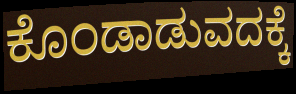
ಕೊಂಡಾಡುವದಕ್ಕೆ